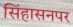
सिंहासनपर